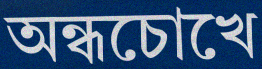
অন্ধচোখে